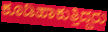
ಕೂಡಿಹಾಕುತ್ತಿದ್ದರು